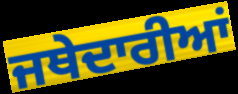
ਜਥੇਦਾਰੀਆਂ